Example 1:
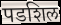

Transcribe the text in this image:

पडशिल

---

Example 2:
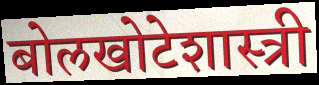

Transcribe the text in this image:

बोलखोटेशास्त्री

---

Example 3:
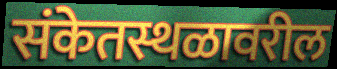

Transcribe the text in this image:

संकेतस्थळावरील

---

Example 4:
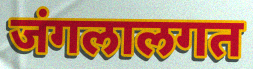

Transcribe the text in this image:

जंगलालगत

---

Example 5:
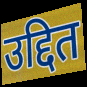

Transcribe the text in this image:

उद्दित